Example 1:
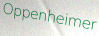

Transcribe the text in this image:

Oppenheimer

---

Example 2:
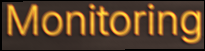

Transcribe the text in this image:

Monitoring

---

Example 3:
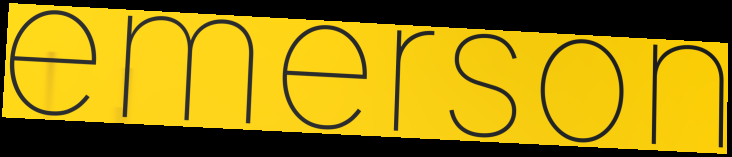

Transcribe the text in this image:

emerson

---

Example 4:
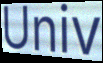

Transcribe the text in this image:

Univ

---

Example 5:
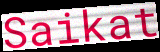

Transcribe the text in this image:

Saikat